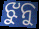
ଝୁନୁ